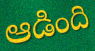
ఆడింది